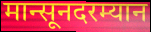
मान्सूनदरम्यान